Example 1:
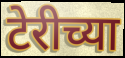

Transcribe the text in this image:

टेरीच्या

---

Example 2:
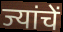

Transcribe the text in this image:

ज्यांचें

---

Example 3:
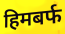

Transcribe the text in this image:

हिमबर्फ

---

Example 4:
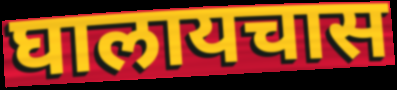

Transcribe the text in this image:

घालायचास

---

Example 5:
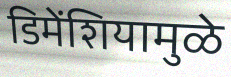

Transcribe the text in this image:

डिमेंशियामुळे